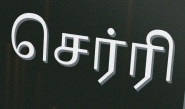
செர்ரி